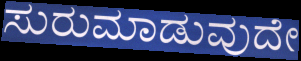
ಸುರುಮಾಡುವುದೇ